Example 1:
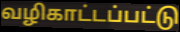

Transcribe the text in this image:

வழிகாட்டப்பட்டு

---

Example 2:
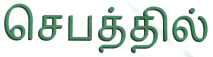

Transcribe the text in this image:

செபத்தில்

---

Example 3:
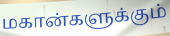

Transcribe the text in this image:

மகான்களுக்கும்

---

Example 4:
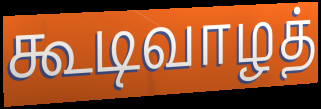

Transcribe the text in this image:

கூடிவாழத்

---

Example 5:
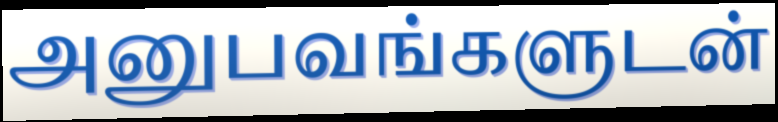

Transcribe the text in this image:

அனுபவங்களுடன்